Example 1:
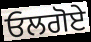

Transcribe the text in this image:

ਓਲਗੋਏ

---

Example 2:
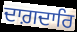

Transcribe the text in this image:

ਦਾਗ਼ਦਾਰਿ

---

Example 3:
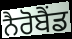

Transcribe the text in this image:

ਨੈਰੋਬੈਂਡ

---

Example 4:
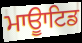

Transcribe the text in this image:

ਮਾਊਾਟਿਡ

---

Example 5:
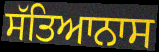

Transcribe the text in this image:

ਸੱਤਿਆਨਾਸ